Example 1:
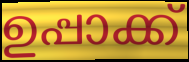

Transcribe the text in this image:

ഉപ്പാക്ക്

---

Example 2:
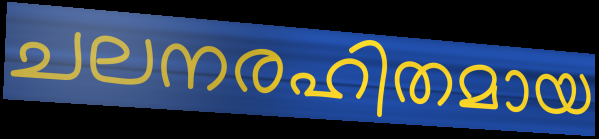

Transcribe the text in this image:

ചലനരഹിതമായ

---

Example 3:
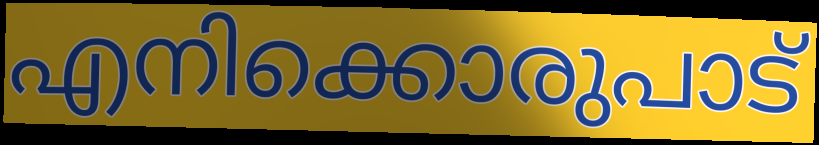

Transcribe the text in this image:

എനിക്കൊരുപാട്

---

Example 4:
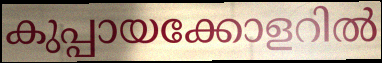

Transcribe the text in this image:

കുപ്പായക്കോളറിൽ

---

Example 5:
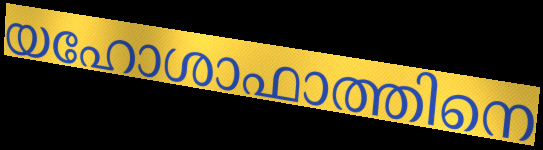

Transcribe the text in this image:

യഹോശാഫാത്തിനെ